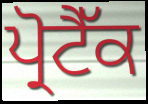
ਪ੍ਰੋਟੈੱਕ